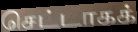
செட்டாகக்